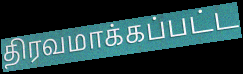
திரவமாக்கப்பட்ட